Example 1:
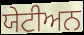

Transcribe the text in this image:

ਯੇਟੀਅਨ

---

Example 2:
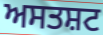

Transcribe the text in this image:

ਅਸਤਸ਼ਟ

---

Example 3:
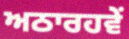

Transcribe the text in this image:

ਅਠਾਰਹਵੇਂ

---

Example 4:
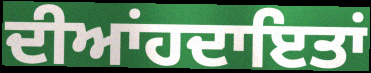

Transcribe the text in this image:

ਦੀਆਂਹਦਾਇਤਾਂ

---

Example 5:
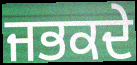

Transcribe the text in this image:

ਜਭਕਦੇ